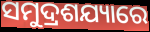
ସମୁଦ୍ରଶଯ୍ୟାରେ